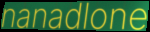
nanadlone